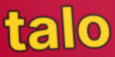
talo